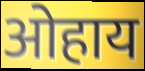
ओहाय